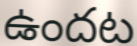
ఉందట